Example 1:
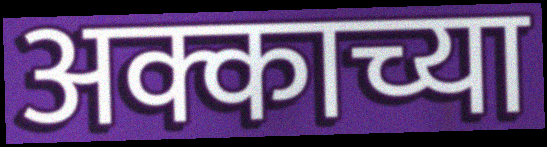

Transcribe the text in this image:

अक्काच्या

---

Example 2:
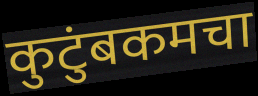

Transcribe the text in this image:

कुटुंबकमचा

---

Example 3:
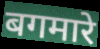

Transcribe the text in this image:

बगमारे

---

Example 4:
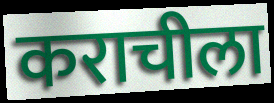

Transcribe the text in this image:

कराचीला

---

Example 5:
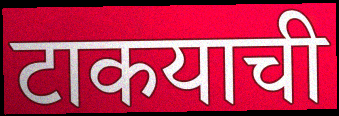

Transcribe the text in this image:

टाकयाची